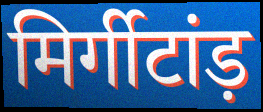
मिर्गीटांड़